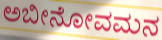
ಅಬೀನೋವಮನ